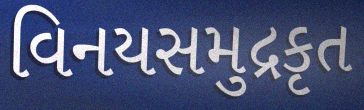
વિનયસમુદ્રકૃત